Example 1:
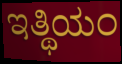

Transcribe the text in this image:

ಇತ್ಥಿಯಂ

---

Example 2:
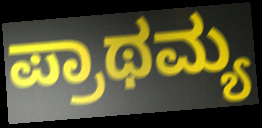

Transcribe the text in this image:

ಪ್ರಾಥಮ್ಯ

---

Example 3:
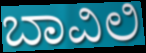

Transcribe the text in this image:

ಬಾವಿಲಿ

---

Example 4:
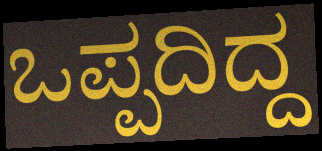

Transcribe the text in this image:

ಒಪ್ಪದಿದ್ದ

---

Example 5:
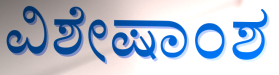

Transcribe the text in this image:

ವಿಶೇಷಾಂಶ